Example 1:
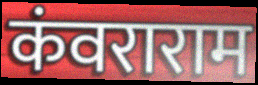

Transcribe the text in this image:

कंवराराम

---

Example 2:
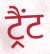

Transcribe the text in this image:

ट्रैंट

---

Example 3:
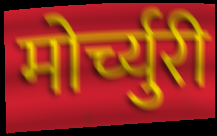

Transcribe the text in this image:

मोर्च्युरी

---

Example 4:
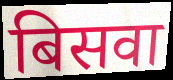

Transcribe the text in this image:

बिसवा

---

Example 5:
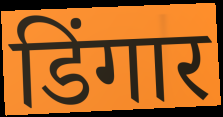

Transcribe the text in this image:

डिंगार